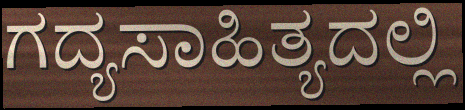
ಗದ್ಯಸಾಹಿತ್ಯದಲ್ಲಿ